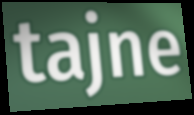
tajne